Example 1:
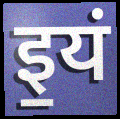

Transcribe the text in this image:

इ॒यं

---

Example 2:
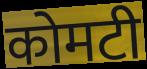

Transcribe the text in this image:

कोमटी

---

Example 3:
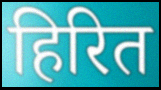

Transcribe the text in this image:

हिरित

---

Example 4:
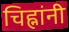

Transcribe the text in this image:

चिह्नांनी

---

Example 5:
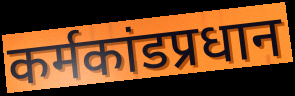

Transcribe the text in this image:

कर्मकांडप्रधान